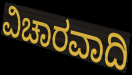
ವಿಚಾರವಾದಿ